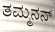
ತಮ್ಮನನ್